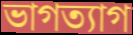
ভাগত্যাগ